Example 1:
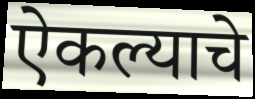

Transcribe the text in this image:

ऐकल्याचे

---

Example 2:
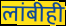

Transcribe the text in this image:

लांबीही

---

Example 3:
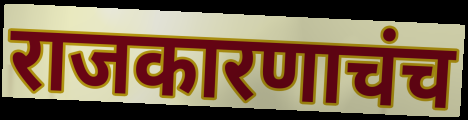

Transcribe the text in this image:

राजकारणाचंच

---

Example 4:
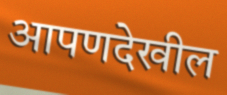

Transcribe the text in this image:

आपणदेखील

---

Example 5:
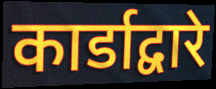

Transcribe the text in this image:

कार्डाद्वारे